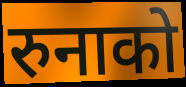
रुनाको